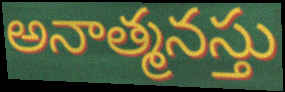
అనాత్మనస్తు